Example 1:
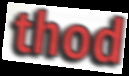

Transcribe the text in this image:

thod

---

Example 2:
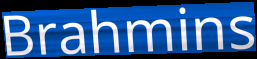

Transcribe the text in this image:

Brahmins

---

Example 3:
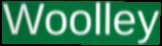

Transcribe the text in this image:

Woolley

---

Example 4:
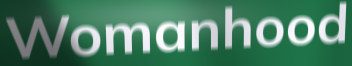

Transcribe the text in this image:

Womanhood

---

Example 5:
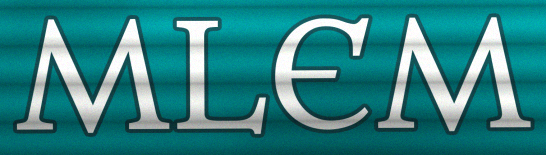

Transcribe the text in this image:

MLEM